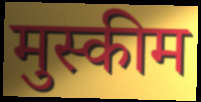
मुस्कीम